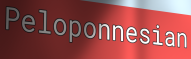
Peloponnesian